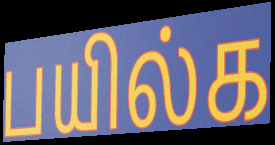
பயில்க